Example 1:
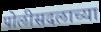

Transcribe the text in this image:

पोलीसदलाच्या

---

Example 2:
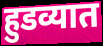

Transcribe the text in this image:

हुडव्यात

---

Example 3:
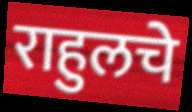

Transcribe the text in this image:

राहुलचे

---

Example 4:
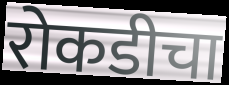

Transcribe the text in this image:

रोकडीचा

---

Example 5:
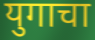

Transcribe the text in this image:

युगाचा